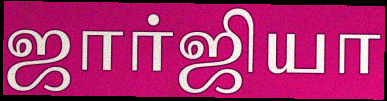
ஜார்ஜியா